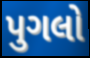
પુગલો